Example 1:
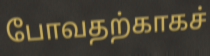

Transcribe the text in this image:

போவதற்காகச்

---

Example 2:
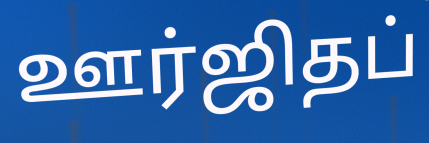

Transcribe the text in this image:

ஊர்ஜிதப்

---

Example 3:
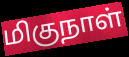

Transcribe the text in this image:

மிகுநாள்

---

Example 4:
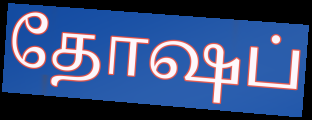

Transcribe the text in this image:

தோஷப்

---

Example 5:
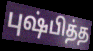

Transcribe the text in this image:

புஷ்பித்த